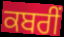
ਕਬਰੀਂ